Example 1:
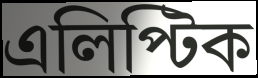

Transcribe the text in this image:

এলিপ্টিক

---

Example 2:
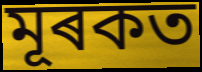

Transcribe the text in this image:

মূৰকত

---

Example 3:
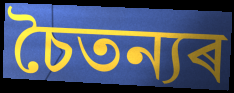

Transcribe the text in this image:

চৈতন্যৰ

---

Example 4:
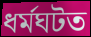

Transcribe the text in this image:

ধৰ্মঘটত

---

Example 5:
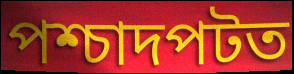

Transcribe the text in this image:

পশ্চাদপটত